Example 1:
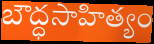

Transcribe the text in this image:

బౌద్ధసాహిత్యం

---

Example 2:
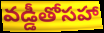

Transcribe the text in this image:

వడ్డీతోసహా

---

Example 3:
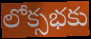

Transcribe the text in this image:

లోక్సభకు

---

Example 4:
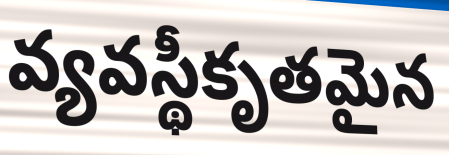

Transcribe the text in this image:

వ్యవస్థీకృతమైన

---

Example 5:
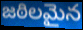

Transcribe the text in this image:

జఠిలమైన